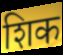
शिक